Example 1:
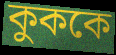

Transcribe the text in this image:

কুককে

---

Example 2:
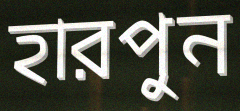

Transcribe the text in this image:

হারপুন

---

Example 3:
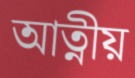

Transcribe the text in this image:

আত্নীয়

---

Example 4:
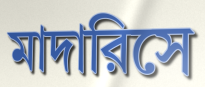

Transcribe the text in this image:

মাদারিসে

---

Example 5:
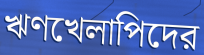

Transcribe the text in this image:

ঋণখেলাপিদের